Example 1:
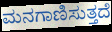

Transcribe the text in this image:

ಮನಗಾಣಿಸುತ್ತದೆ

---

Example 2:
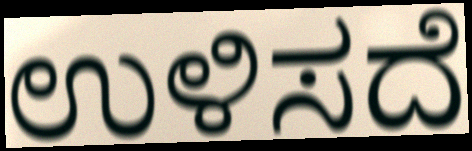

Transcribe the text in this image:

ಉಳಿಸದೆ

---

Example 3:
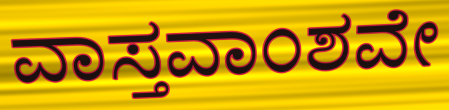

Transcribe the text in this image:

ವಾಸ್ತವಾಂಶವೇ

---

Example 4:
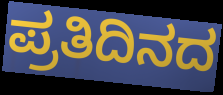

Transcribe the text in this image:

ಪ್ರತಿದಿನದ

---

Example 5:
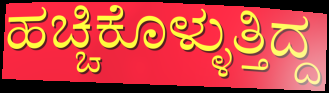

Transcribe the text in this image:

ಹಚ್ಚಿಕೊಳ್ಳುತ್ತಿದ್ದ